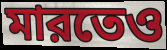
মারতেও